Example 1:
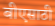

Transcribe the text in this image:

बीएसाठी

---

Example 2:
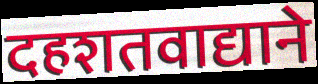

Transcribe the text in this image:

दहशतवाद्याने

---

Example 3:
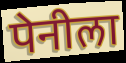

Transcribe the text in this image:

पेनीला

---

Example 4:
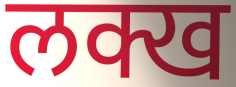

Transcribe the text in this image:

लक्ख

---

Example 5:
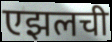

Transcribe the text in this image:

एझलची